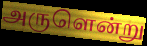
அருளென்று